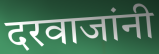
दरवाजांनी